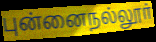
புன்னைநல்லூர்